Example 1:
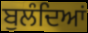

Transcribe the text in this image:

ਬੁਲੰਦਿਆਂ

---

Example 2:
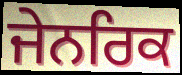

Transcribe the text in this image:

ਜੇਨਰਿਕ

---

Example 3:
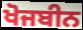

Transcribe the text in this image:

ਖੋਜਬੀਨ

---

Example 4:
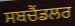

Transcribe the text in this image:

ਸਬਚੈਂਡਲਰ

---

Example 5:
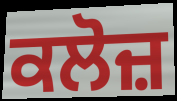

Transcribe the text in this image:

ਕਲੋਜ਼